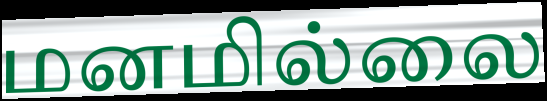
மனமில்லை